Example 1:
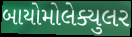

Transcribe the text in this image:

બાયોમોલેક્યુલર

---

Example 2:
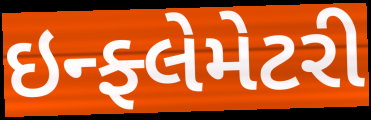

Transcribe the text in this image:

ઇન્ફ્લેમેટરી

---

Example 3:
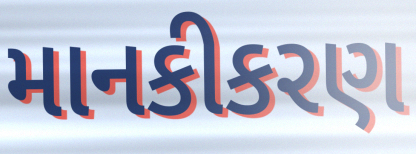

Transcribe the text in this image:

માનકીકરણ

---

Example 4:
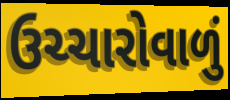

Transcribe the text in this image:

ઉચ્ચારોવાળું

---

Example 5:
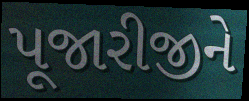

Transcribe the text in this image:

પૂજારીજીને